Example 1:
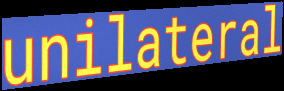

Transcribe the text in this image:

unilateral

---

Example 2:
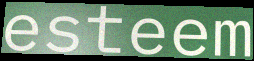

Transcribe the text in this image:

esteem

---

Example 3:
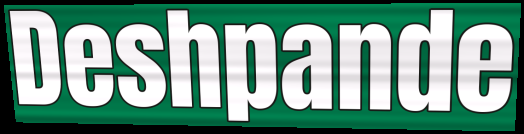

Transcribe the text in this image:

Deshpande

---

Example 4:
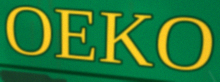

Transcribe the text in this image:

OEKO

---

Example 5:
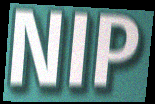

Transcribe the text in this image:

NIP